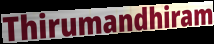
Thirumandhiram